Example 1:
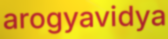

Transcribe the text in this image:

arogyavidya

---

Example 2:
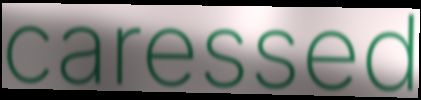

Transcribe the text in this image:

caressed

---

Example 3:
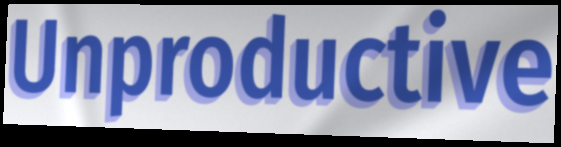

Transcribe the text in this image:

Unproductive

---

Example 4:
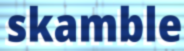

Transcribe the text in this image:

skamble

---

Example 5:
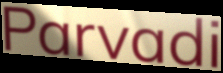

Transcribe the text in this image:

Parvadi